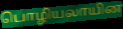
பொழியலாயின